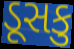
ડૂસકુ